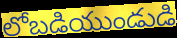
లోబడియుండుడి